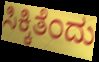
ಸಿಕ್ಕಿತೆಂದು